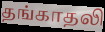
தங்காதலி